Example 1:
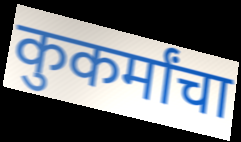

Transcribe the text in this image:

कुकर्मांचा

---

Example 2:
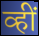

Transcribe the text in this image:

व्हीं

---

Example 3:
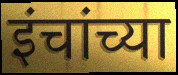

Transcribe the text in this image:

इंचांच्या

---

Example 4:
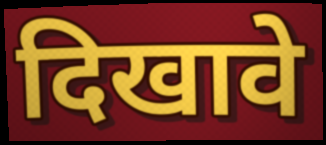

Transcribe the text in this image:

दिखावे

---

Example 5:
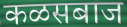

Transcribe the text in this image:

कळसबाज